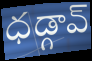
ధడ్గావ్